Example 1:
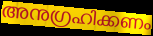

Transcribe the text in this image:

അനുഗ്രഹിക്കണം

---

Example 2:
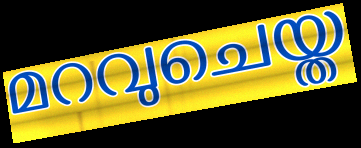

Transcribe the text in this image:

മറവുചെയ്ത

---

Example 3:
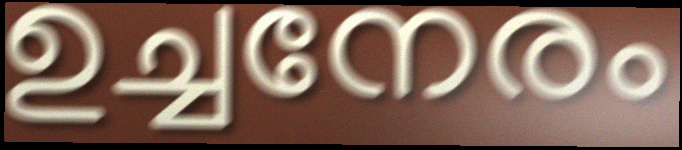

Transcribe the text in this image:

ഉച്ചനേരം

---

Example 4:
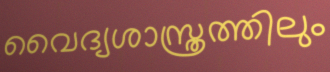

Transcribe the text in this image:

വൈദ്യശാസ്ത്രത്തിലും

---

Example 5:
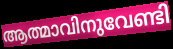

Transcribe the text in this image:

ആത്മാവിനുവേണ്ടി